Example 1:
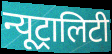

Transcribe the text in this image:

न्यूट्रालिटी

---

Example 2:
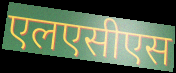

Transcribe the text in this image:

एलएसीएस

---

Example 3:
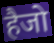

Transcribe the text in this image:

हैजो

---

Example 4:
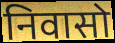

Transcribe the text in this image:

निवासो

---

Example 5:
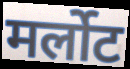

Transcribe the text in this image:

मर्लोट